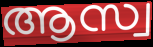
ആസ്വ